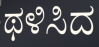
ಥಳಿಸಿದ